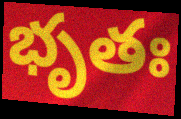
భృతః